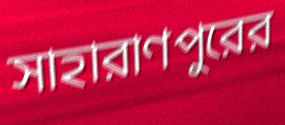
সাহারাণপুরের